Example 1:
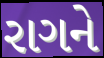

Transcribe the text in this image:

રાગને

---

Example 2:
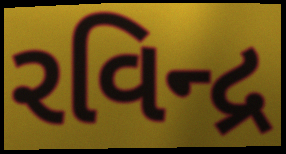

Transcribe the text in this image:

રવિન્દ્ર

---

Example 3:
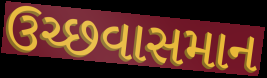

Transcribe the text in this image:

ઉચ્છવાસમાન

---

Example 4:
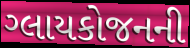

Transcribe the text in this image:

ગ્લાયકોજનની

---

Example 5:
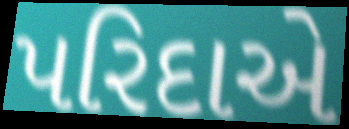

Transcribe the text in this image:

પરિદાએ